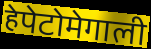
हेपेटोमेगाली